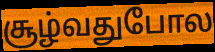
சூழ்வதுபோல